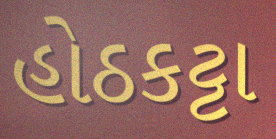
હોઠકટ્ટા